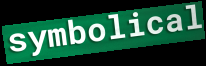
symbolical